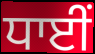
ਧਾਈਂ